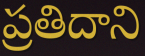
ప్రతిదాని